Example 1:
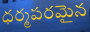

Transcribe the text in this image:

ధర్మపరమైన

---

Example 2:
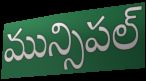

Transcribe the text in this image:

మున్సిపల్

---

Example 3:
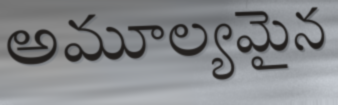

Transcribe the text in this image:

అమూల్యమైన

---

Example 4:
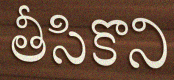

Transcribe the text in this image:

తీసికొని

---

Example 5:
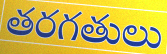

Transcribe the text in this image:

తరగతులు